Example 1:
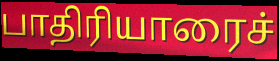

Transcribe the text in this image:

பாதிரியாரைச்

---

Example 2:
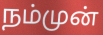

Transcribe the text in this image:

நம்முன்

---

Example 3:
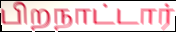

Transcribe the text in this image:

பிறநாட்டார்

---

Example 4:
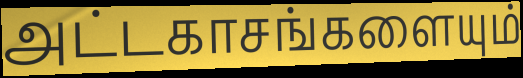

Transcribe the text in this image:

அட்டகாசங்களையும்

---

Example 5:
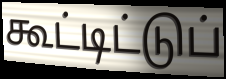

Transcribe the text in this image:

கூட்டிட்டுப்